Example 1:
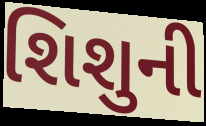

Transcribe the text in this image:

શિશુની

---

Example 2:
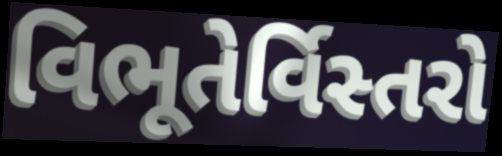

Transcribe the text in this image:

વિભૂતેર્વિસ્તરો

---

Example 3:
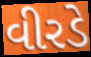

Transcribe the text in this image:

વીરડે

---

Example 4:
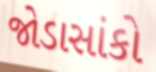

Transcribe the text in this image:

જોડાસાંકો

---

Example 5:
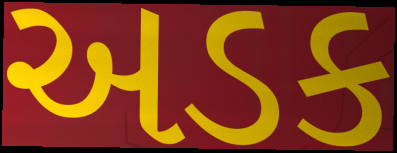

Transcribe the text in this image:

અડક